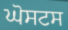
ਘੋਸਟਸ